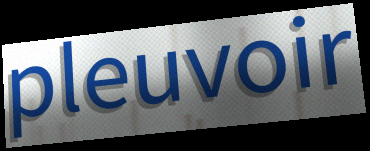
pleuvoir